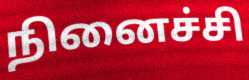
நினைச்சி